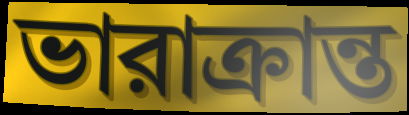
ভারাক্রান্ত